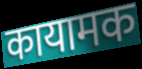
कायामक